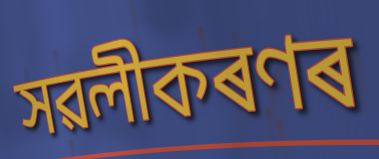
সৱলীকৰণৰ